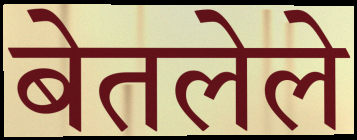
बेतलेले